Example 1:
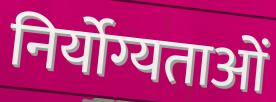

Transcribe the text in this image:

निर्योग्यताओं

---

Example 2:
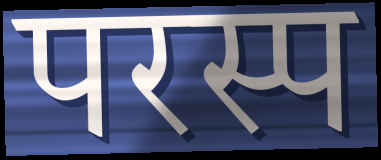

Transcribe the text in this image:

परस्प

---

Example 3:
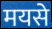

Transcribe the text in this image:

मयसे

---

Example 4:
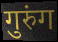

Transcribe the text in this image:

गुरुंग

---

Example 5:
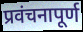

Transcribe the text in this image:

प्रवंचनापूर्ण